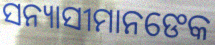
ସନ୍ୟାସୀମାନଙେକ